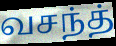
வசந்த்